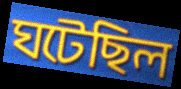
ঘটেছিল